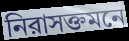
নিরাসক্তমনে